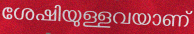
ശേഷിയുള്ളവയാണ്